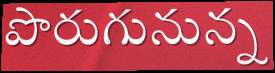
పొరుగునున్న